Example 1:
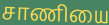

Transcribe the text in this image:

சாணியை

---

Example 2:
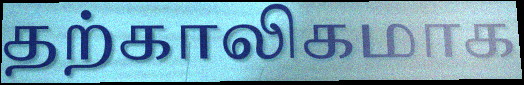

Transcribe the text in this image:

தற்காலிகமாக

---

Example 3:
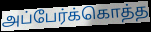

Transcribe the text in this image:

அப்பேர்க்கொத்த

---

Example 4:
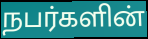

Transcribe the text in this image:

நபர்களின்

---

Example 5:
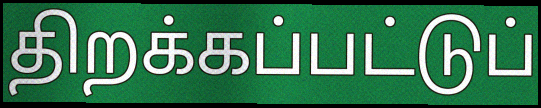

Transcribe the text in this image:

திறக்கப்பட்டுப்